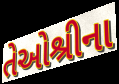
તેઓશ્રીના